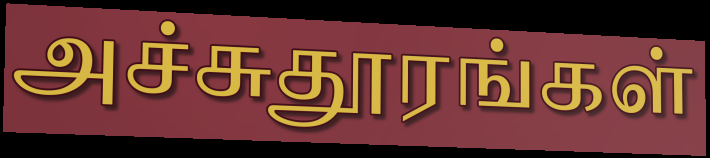
அச்சுதூரங்கள்